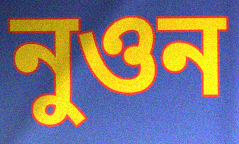
নুওন